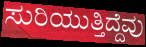
ಸುರಿಯುತ್ತಿದ್ದೆವು